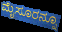
ಮೈಸೂರನ್ನೂ